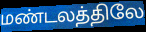
மண்டலத்திலே